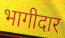
भागीदार